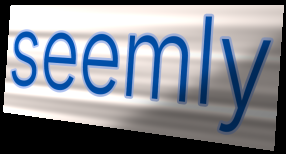
seemly